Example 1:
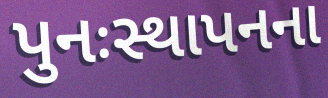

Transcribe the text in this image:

પુનઃસ્થાપનના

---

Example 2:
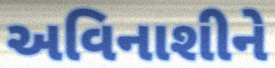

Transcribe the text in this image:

અવિનાશીને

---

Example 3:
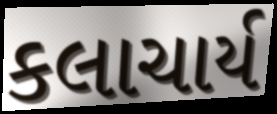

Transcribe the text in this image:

કલાચાર્ય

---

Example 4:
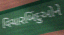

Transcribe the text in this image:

વિચારબિંદુઓને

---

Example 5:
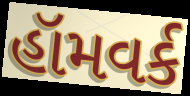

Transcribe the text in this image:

હૉમવર્ક